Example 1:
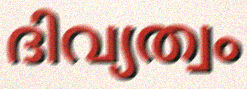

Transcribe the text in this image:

ദിവ്യത്വം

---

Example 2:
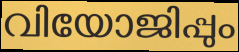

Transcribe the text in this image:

വിയോജിപ്പും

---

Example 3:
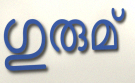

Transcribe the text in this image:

ഗുരുമ്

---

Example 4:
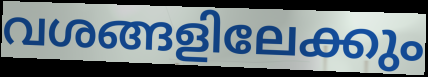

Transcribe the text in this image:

വശങ്ങളിലേക്കും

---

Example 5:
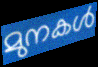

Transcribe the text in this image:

മുനകൾ